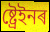
ষ্ট্ৰেইনৰ